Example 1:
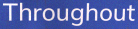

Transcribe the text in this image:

Throughout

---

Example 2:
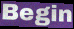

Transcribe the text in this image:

Begin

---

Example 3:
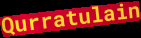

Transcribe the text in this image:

Qurratulain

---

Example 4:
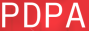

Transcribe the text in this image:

PDPA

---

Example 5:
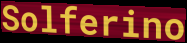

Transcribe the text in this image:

Solferino